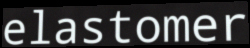
elastomer